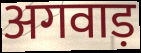
अगवाड़